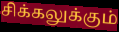
சிக்கலுக்கும்